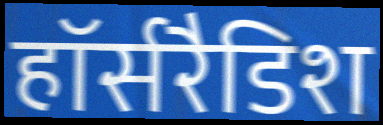
हॉर्सरैडिश